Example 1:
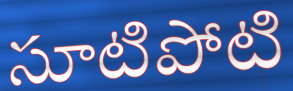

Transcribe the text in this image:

సూటిపోటి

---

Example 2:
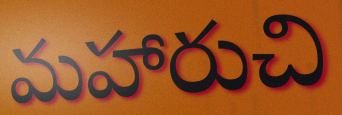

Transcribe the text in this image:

మహారుచి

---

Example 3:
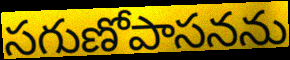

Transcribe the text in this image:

సగుణోపాసనను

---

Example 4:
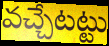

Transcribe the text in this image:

వచ్చేటట్టు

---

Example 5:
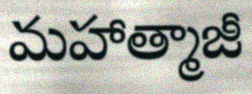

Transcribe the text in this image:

మహాత్మాజీ